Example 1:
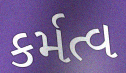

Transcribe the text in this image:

કર્મત્વ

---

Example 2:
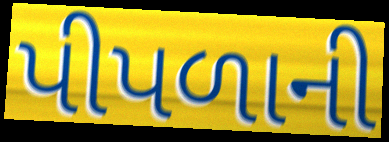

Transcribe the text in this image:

પીપળાની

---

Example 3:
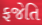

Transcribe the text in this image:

ફજેતિ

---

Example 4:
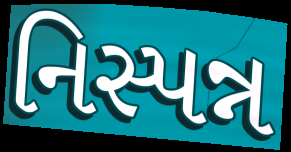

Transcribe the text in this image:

નિસ્પન્ન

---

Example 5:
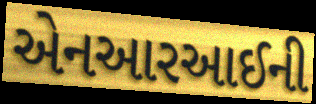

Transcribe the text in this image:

એનઆરઆઈની